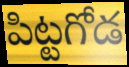
పిట్టగోడ